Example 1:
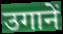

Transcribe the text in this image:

उगानें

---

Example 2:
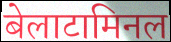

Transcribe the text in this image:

बेलाटामिनल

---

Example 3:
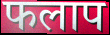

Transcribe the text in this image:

फलाप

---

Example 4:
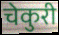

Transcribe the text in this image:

चेकुरी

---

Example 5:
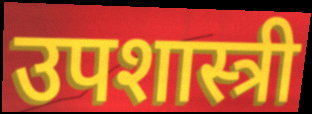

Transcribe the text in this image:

उपशास्त्री